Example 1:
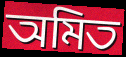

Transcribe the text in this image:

অমিত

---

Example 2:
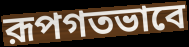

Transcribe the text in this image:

রূপগতভাবে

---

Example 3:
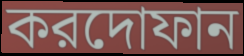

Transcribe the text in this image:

করদোফান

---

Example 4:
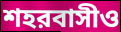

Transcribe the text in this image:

শহরবাসীও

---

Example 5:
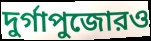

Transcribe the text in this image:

দুর্গাপুজোরও